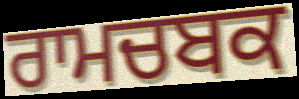
ਰਾਮਚਬਕ